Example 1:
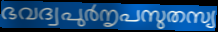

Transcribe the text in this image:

ഭവദ്വപുർനൃപസുതസ്യ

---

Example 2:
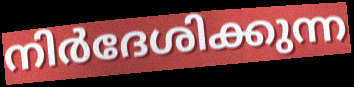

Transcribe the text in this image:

നിർദേശിക്കുന്ന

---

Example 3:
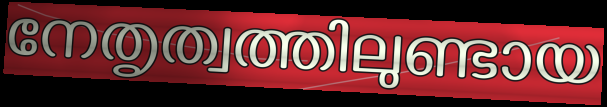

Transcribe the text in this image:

നേതൃത്വത്തിലുണ്ടായ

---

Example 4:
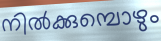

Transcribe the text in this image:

നിൽക്കുമ്പൊഴും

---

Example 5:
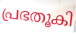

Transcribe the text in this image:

പ്രഭതൂകി